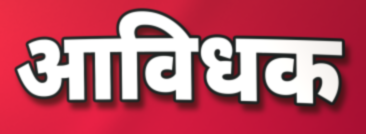
आविधक